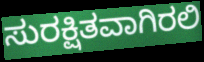
ಸುರಕ್ಷಿತವಾಗಿರಲಿ